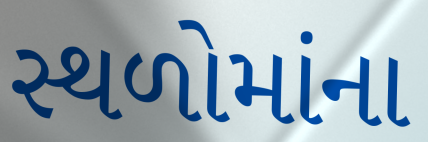
સ્થળોમાંના